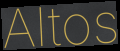
Altos